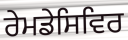
ਰੇਮਡੇਸਿਵਿਰ